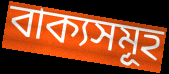
বাক্যসমূহ